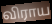
விராய